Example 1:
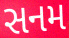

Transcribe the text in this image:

સનમ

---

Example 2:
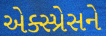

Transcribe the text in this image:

એક્સ્પ્રેસને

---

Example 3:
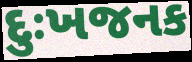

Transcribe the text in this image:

દુઃખજનક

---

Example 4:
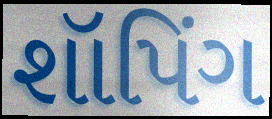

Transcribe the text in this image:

શૉપિંગ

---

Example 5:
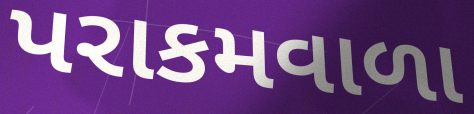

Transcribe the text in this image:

પરાકમવાળા